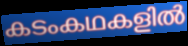
കടംകഥകളിൽ